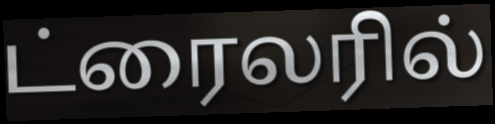
ட்ரைலரில்